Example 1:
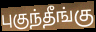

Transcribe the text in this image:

புகுந்தீங்கு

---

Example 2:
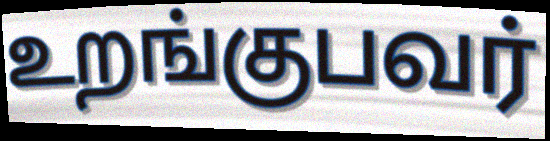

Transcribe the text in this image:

உறங்குபவர்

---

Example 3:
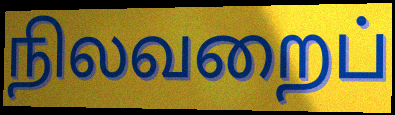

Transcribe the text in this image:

நிலவறைப்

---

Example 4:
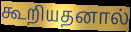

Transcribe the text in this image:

கூறியதனால்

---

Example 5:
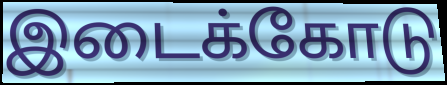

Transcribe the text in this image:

இடைக்கோடு